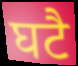
घटै